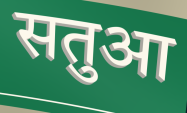
सतुआ